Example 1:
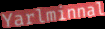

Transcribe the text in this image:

Yarlminnal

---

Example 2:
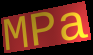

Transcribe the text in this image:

MPa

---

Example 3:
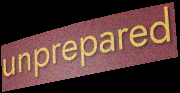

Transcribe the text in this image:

unprepared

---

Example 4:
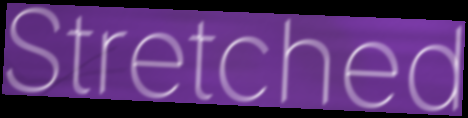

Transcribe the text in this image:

Stretched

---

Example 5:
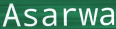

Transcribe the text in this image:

Asarwa